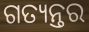
ଗତ୍ୟନ୍ତର